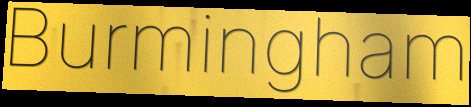
Burmingham